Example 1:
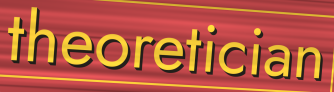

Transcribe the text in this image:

theoretician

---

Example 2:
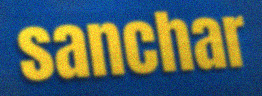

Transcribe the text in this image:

sanchar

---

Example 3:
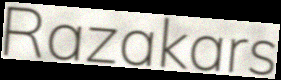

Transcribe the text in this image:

Razakars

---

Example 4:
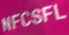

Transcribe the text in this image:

NFCSFL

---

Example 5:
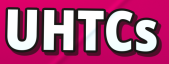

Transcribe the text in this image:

UHTCs